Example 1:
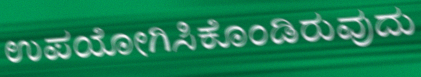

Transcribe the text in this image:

ಉಪಯೋಗಿಸಿಕೊಂಡಿರುವುದು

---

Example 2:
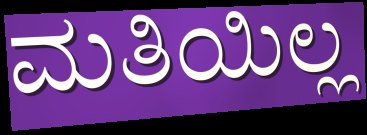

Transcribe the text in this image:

ಮತಿಯಿಲ್ಲ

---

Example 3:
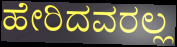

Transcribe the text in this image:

ಹೇರಿದವರಲ್ಲ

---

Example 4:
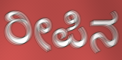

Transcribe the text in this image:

ರೀಪಿನ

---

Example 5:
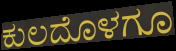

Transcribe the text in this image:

ಕುಲದೊಳಗೂ